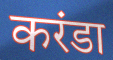
करंडा